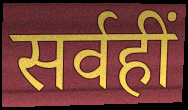
सर्वहीं